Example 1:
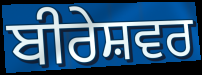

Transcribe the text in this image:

ਬੀਰੇਸ਼ਵਰ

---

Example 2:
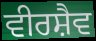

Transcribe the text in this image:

ਵੀਰਸ਼ੈਵ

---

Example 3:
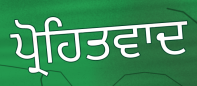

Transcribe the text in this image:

ਪ੍ਰੋਹਿਤਵਾਦ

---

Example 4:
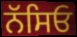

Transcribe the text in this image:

ਨੱਸਿਓ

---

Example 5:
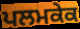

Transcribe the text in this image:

ਪਲਮਕੇਕ